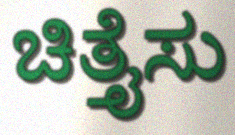
ಚಿತ್ತೈಸು